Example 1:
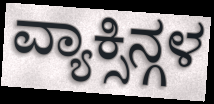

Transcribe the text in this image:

ವ್ಯಾಕ್ಸಿನ್ಗಳ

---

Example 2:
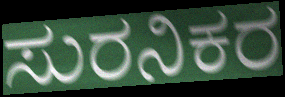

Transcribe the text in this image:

ಸುರನಿಕರ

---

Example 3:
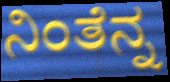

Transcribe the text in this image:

ನಿಂತೆನ್ನ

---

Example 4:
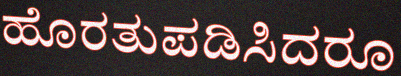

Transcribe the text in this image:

ಹೊರತುಪಡಿಸಿದರೂ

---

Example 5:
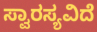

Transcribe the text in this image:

ಸ್ವಾರಸ್ಯವಿದೆ